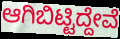
ಆಗಿಬಿಟ್ಟಿದ್ದೇವೆ